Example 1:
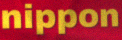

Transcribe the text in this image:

nippon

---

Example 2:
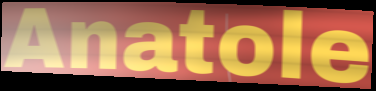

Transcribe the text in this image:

Anatole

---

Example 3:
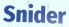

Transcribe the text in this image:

Snider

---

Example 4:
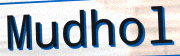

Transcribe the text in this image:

Mudhol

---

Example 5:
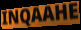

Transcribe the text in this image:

INQAAHE